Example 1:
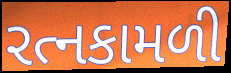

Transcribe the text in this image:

રત્નકામળી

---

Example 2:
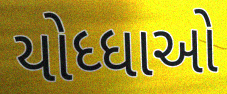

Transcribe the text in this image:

યોધ્ધાઓ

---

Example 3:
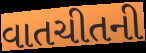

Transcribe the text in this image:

વાતચીતની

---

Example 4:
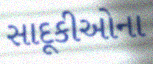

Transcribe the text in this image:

સાદૂકીઓના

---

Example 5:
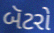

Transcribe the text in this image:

બૅટરો